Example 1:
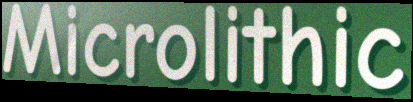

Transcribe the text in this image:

Microlithic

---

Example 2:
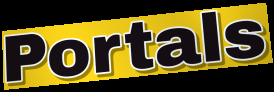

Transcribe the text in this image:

Portals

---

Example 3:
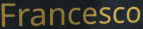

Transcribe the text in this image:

Francesco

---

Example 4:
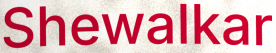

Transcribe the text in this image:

Shewalkar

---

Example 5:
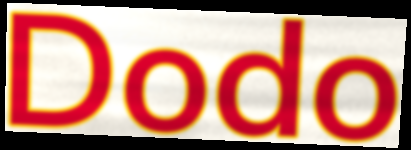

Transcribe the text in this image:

Dodo